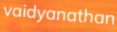
vaidyanathan